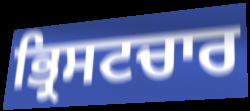
ਭ੍ਰਿਸਟਚਾਰ